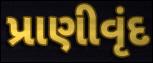
પ્રાણીવૃંદ